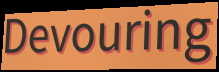
Devouring